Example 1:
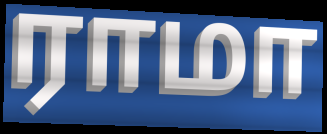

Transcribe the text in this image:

ராமா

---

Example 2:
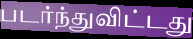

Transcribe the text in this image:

படர்ந்துவிட்டது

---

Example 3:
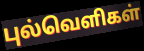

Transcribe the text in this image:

புல்வெளிகள்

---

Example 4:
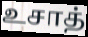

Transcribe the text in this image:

உசாத்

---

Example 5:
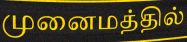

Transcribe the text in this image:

முனைமத்தில்